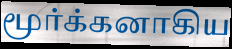
மூர்க்கனாகிய